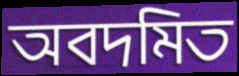
অবদমিত